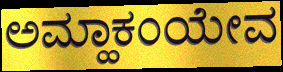
ಅಮ್ಹಾಕಂಯೇವ